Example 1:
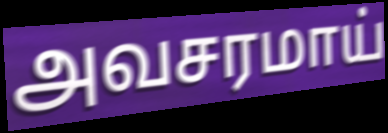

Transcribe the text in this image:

அவசரமாய்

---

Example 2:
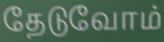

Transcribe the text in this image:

தேடுவோம்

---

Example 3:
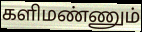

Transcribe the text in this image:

களிமண்ணும்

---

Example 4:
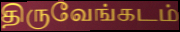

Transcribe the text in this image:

திருவேங்கடம்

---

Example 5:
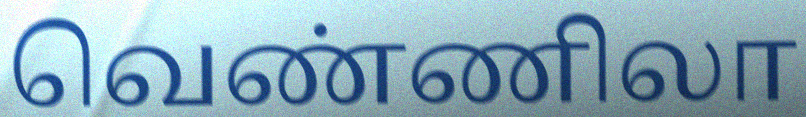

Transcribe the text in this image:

வெண்ணிலா